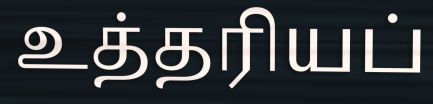
உத்தரியப்